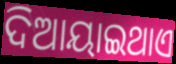
ଦିଆୟାଇଥାଏ